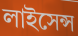
লাইসেন্স